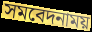
সমবেদনাময়